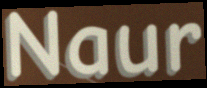
Naur